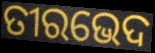
ତୀରଭେଦ